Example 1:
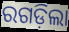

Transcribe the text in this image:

ରଗଡ଼ିଲା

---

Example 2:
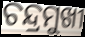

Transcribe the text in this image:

ଚନ୍ଦ୍ରମୁଖୀ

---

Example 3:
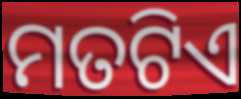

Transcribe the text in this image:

ମତଟିଏ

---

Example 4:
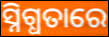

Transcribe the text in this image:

ସ୍ନିଗ୍ଧତାରେ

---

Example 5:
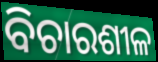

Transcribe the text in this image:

ବିଚାରଶୀଳ